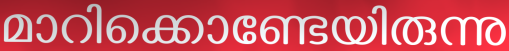
മാറിക്കൊണ്ടേയിരുന്നു